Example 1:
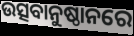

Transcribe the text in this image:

ଉତ୍ସବାନୁଷ୍ଠାନରେ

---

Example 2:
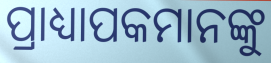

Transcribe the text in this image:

ପ୍ରାଧ୍ୟାପକମାନଙ୍କୁ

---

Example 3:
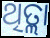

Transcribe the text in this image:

ଥିତ୍ଲା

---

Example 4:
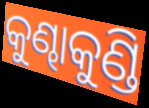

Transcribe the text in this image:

କୁଣ୍ଢାକୁଣ୍ଡି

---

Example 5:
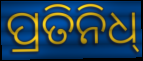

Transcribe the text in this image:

ପ୍ରତିନିଧ୍